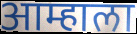
आम्हाला